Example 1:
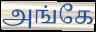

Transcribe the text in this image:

அங்கே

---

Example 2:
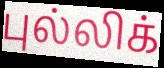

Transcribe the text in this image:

புல்லிக்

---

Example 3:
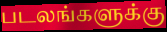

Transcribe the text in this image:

படலங்களுக்கு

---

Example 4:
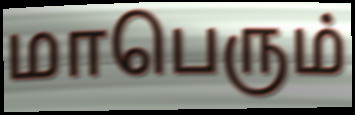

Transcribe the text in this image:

மாபெரும்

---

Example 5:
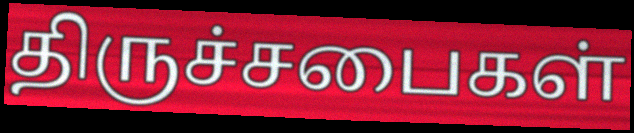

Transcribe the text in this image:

திருச்சபைகள்